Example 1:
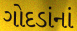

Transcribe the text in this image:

ગોદડાંનાં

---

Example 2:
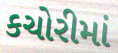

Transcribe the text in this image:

કચોરીમાં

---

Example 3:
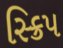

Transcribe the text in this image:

સ્ક્રિપ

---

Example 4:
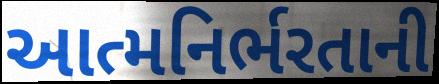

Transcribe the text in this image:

આત્મનિર્ભરતાની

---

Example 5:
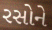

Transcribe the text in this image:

રસોને